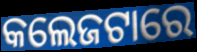
କଲେଜଟାରେ